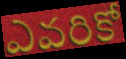
ఎవరికో